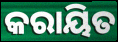
କରାୟିତ